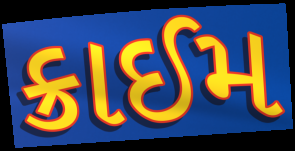
ક્રાઈમ